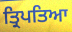
ਤ੍ਰਿਪਤਿਆ